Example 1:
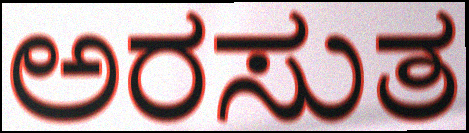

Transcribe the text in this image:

ಅರಸುತ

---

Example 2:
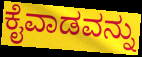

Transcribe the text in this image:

ಕೈವಾಡವನ್ನು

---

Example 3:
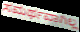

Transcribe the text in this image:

ಸಮರ್ಥವಾಗಿಲ್ಲ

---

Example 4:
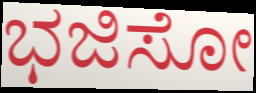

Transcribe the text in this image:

ಭಜಿಸೋ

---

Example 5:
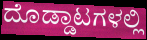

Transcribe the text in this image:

ದೊಡ್ಡಾಟಗಳಲ್ಲಿ